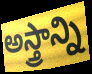
అస్త్రాన్ని